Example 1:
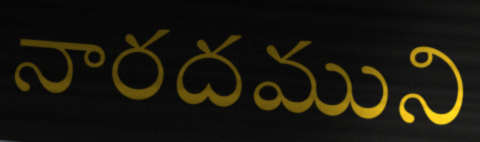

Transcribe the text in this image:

నారదముని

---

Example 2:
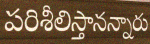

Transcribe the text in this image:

పరిశీలిస్తానన్నారు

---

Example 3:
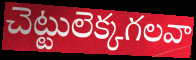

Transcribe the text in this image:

చెట్టులెక్కగలవా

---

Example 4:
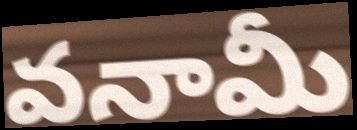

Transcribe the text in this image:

వనామీ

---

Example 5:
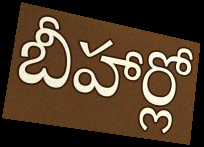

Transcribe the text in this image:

బీహార్లో